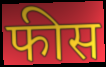
फीस